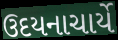
ઉદયનાચાર્યે